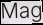
Mag